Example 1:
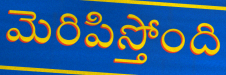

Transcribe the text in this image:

మెరిపిస్తోంది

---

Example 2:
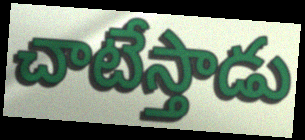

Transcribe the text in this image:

చాటేస్తాడు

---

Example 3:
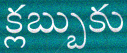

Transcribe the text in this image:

క్లబ్బుకు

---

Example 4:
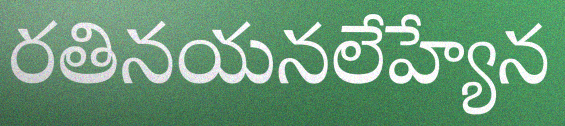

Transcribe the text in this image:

రతినయనలేహ్యేన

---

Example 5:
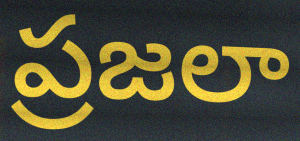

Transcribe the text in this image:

ప్రజలా